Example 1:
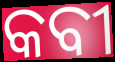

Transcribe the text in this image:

କବୀ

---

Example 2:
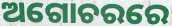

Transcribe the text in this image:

ଅଗୋଚରରେ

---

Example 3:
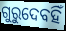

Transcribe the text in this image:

ଗୁରୁଦେବହିଁ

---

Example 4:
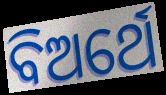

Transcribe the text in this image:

ବିଅର୍ଥେ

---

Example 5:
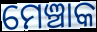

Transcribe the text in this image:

ମେଞ୍ଚାକ